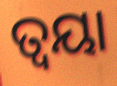
ତ୍ୱୟା